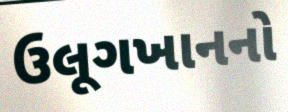
ઉલૂગખાનનો